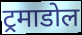
ट्रमाडोल